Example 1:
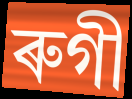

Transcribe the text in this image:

ৰুগী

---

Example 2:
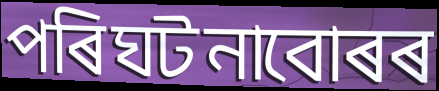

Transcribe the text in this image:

পৰিঘটনাবোৰৰ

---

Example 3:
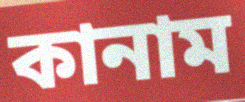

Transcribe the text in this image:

কানাম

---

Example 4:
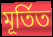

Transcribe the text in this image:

মূৰ্তিত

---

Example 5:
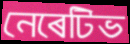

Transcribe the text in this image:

নেৰেটিভ